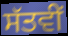
ਸੱਤਵੀਂ